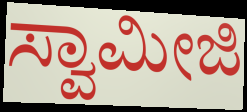
ಸ್ವಾಮೀಜಿ